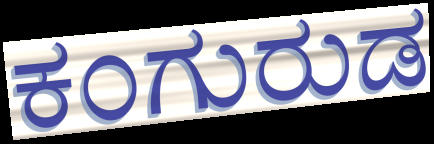
ಕಂಗುರುಡ